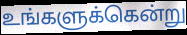
உங்களுக்கென்று